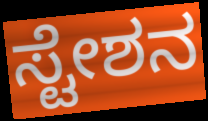
ಸ್ಟೇಶನ